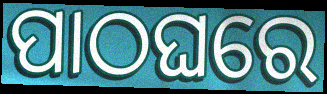
ପାଠଘରେ